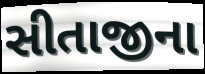
સીતાજીના